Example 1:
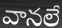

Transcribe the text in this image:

వానలే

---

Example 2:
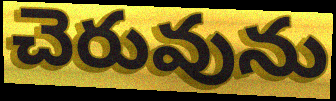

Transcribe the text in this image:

చెరువును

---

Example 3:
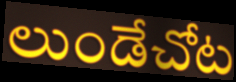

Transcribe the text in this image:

లుండేచోట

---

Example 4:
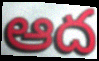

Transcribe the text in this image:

ఆద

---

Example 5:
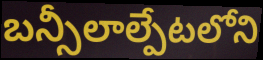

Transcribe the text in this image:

బన్సీలాల్పేటలోని